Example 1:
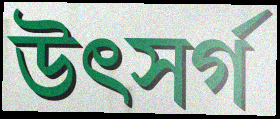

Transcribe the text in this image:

উৎসৰ্গ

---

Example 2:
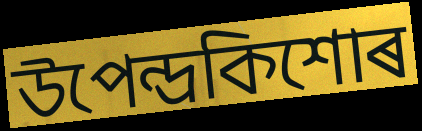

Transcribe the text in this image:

উপেন্দ্ৰকিশোৰ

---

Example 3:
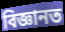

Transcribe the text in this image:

বিজ্ঞানত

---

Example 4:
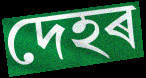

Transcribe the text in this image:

দেহৰ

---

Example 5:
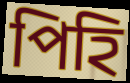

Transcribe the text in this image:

পিহি